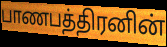
பாணபத்திரனின்